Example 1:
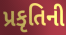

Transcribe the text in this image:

પ્રકૃતિની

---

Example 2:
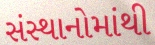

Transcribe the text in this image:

સંસ્થાનોમાંથી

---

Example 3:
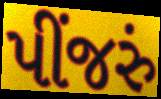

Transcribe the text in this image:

પીંજરું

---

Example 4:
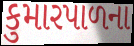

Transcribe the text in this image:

કુમારપાળના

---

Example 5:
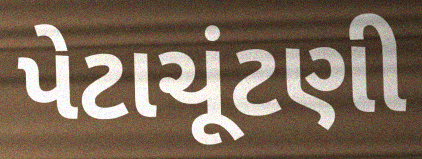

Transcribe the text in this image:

પેટાચૂંટણી